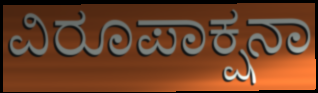
ವಿರೂಪಾಕ್ಷನಾ